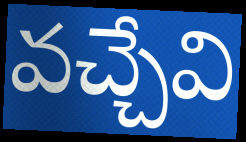
వచ్చేవి